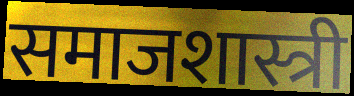
समाजशास्त्री